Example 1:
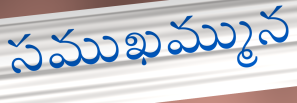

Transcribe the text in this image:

సముఖమ్మున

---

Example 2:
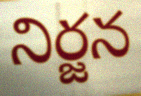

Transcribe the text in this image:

నిర్జన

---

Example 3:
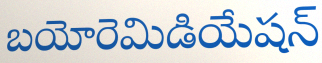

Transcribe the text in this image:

బయోరెమిడియేషన్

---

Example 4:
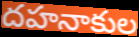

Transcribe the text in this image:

దహనాకుల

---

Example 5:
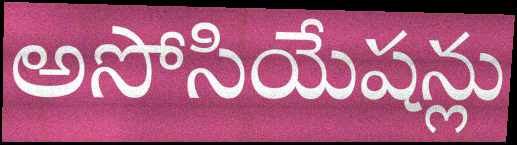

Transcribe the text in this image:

అసోసియేషన్లు